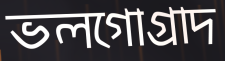
ভলগোগ্রাদ